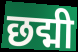
छद्मी